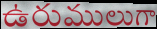
ఉరుములుగా